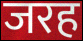
जरह